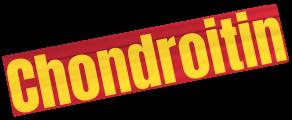
Chondroitin